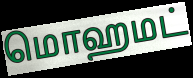
மொஹமட்